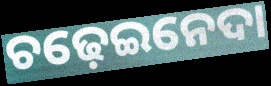
ଚଢ଼େଇନେଦା